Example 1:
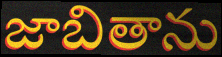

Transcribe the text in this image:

జాబితాను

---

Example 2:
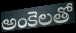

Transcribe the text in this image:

అంకెలతో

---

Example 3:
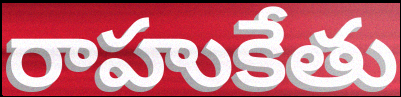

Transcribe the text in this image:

రాహుకేతు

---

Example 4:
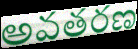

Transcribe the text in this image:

అవతరణ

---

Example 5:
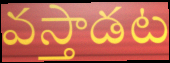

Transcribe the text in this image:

వస్తాడట